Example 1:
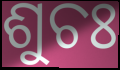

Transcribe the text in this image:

ଶୁଚଃ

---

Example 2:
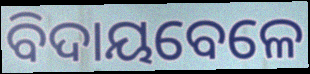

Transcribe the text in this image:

ବିଦାୟବେଳେ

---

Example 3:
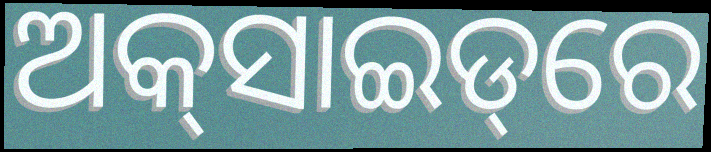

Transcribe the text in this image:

ଅକ୍‌ସାଇଡ୍‌ରେ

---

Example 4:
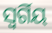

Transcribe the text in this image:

ସ୍ୱର୍ଗିୟ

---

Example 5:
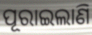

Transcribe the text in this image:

ପୂରାଇଲାଣି